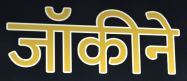
जॉकीने